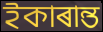
ইকাৰান্ত